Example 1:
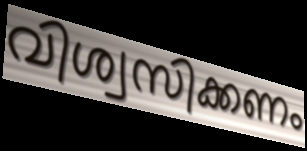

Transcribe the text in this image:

വിശ്വസിക്കണം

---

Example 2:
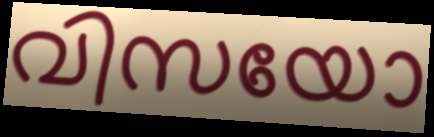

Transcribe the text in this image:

വിസയോ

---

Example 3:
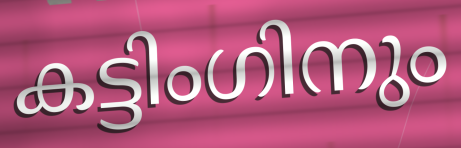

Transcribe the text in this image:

കട്ടിംഗിനും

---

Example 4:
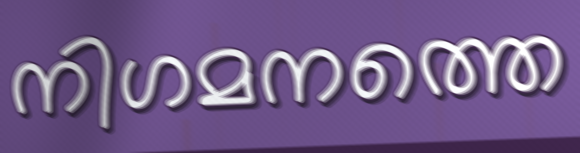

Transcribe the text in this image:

നിഗമനത്തെ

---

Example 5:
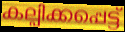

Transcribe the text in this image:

കല്പിക്കപ്പെട്ട്